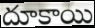
దూకాయి